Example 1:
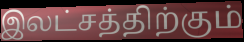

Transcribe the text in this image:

இலட்சத்திற்கும்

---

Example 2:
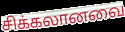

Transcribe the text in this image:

சிக்கலானவை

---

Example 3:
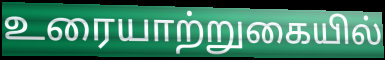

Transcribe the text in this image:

உரையாற்றுகையில்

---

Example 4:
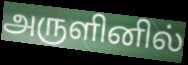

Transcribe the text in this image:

அருளினில்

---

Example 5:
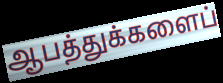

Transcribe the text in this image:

ஆபத்துக்களைப்